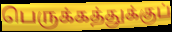
பெருக்கத்துக்குப்